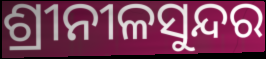
ଶ୍ରୀନୀଳସୁନ୍ଦର